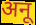
अनू